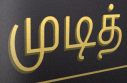
முடித்